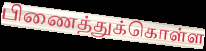
பிணைத்துக்கொள்ள